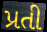
પ્રતી